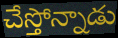
చేస్తోన్నాడు